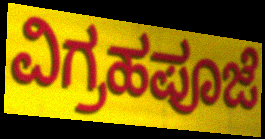
ವಿಗ್ರಹಪೂಜೆ